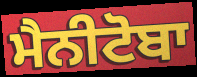
ਮੈਨੀਟੋਬਾ